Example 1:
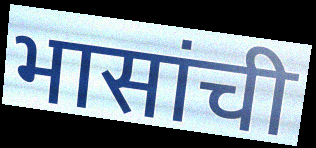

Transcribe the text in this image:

भासांची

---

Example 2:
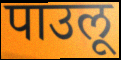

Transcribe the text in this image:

पाउलू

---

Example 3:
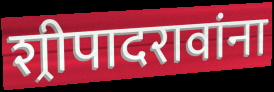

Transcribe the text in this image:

श्रीपादरावांना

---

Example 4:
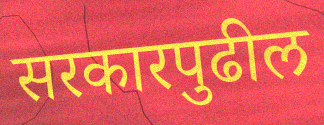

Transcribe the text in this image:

सरकारपुढील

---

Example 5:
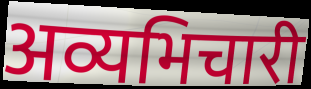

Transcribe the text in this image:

अव्यभिचारी